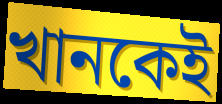
খানকেই